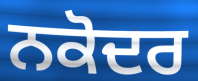
ਨਕੋਦਰ